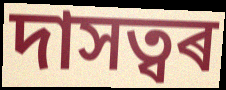
দাসত্বৰ